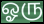
ஓரு